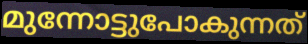
മുന്നോട്ടുപോകുന്നത്